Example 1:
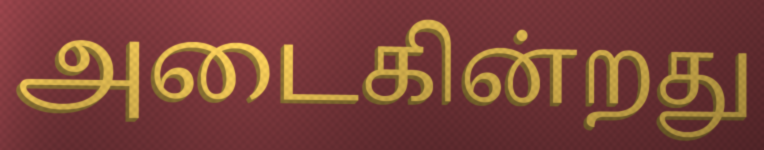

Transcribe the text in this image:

அடைகின்றது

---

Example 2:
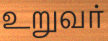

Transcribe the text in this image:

உறுவர்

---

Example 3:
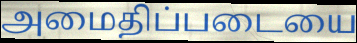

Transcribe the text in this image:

அமைதிப்படையை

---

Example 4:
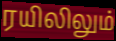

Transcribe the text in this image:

ரயிலிலும்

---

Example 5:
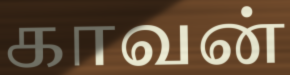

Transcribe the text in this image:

காவன்